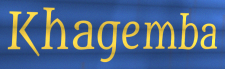
Khagemba